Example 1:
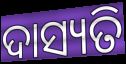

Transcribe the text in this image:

ଦାସ୍ୟତି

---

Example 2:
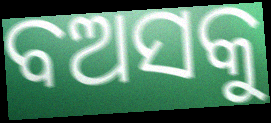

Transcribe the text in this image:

ବଅସକୁ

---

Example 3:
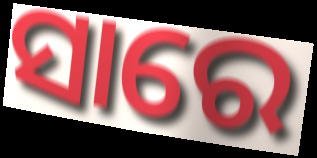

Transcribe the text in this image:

ସାରେ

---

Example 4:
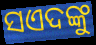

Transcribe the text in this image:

ସଏଦଙ୍କୁ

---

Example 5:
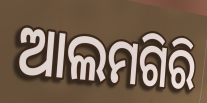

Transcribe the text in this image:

ଆଲମଗିରି